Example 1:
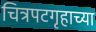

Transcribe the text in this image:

चित्रपटगृहाच्या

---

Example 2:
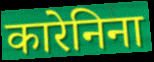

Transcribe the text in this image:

कारेनिना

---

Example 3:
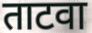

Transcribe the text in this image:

ताटवा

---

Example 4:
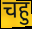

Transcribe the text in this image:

चहु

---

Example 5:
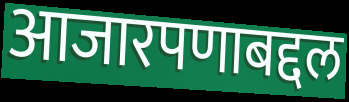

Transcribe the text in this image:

आजारपणाबद्दल